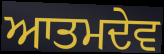
ਆਤਮਦੇਵ